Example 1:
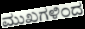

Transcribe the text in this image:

ಮುಖಗಳಿಂದ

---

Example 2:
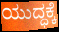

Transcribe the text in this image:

ಯುದ್ಧಕ್ಕೆ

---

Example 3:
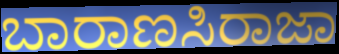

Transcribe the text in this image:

ಬಾರಾಣಸಿರಾಜಾ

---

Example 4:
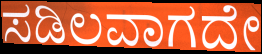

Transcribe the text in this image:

ಸಡಿಲವಾಗದೇ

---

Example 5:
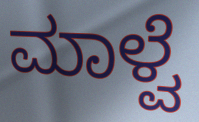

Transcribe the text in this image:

ಮಾಳ್ವೆ